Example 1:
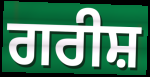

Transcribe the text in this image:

ਗਰੀਸ਼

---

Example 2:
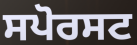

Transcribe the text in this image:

ਸਪੋਰਸਟ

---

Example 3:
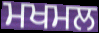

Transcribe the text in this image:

ਮਖਮਲ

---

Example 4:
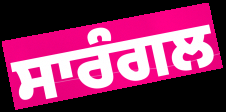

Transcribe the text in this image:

ਸਾਰੰਗਲ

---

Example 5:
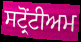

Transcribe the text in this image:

ਸਟ੍ਰੋਂਟੀਅਮ